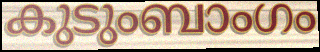
കുടുംബാംഗം